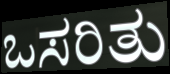
ಒಸರಿತು